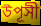
উপূসী